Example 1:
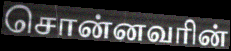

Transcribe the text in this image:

சொன்னவரின்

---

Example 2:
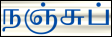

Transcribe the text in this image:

நஞ்சுப்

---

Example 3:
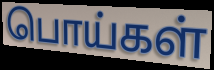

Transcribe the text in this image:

பொய்கள்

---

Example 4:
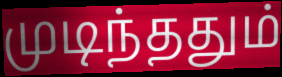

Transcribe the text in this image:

முடிந்ததும்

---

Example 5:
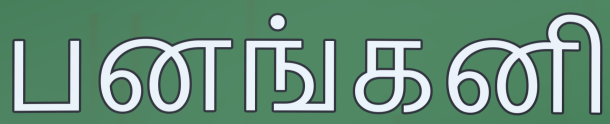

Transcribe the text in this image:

பனங்கனி